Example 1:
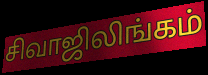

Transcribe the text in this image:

சிவாஜிலிங்கம்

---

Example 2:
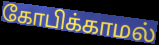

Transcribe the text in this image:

கோபிக்காமல்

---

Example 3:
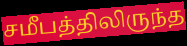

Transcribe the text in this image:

சமீபத்திலிருந்த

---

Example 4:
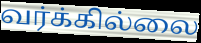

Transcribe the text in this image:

வர்க்கில்லை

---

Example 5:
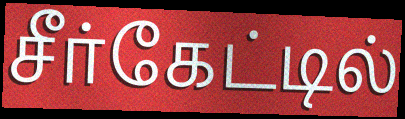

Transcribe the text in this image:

சீர்கேட்டில்